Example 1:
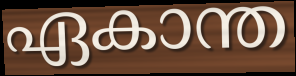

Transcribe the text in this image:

ഏകാന്ത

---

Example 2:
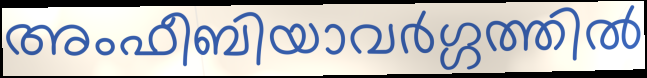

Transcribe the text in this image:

അംഫീബിയാവർഗ്ഗത്തിൽ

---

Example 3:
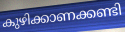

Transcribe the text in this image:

കുഴിക്കാണക്കണ്ടി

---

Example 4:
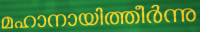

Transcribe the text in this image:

മഹാനായിത്തീർന്നു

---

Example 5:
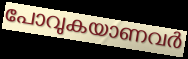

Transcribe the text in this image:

പോവുകയാണവർ